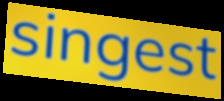
singest